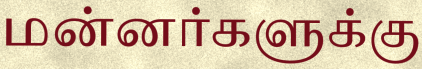
மன்னர்களுக்கு